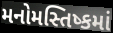
મનોમસ્તિષ્કમાં